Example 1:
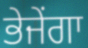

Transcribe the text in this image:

ਭੇਜੇਂਗਾ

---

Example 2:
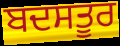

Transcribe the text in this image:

ਬਦਸਤੂਰ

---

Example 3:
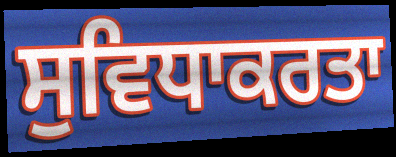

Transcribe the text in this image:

ਸੁਵਿਧਾਕਰਤਾ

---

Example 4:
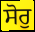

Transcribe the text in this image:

ਸੋਰੁ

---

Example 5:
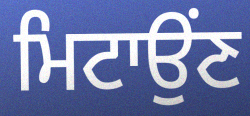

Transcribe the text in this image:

ਮਿਟਾਉਂਣ